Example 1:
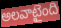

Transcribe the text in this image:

అలవాటైంది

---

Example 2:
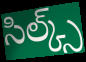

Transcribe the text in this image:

సిల్క్స్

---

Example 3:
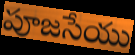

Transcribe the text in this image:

పూజసేయు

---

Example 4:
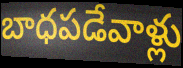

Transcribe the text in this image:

బాధపడేవాళ్లు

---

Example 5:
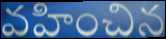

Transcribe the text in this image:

వహించిన